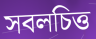
সবলচিত্ত